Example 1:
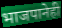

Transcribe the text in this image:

भाजपानेही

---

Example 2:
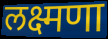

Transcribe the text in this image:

लक्ष्मणा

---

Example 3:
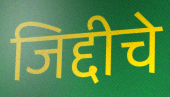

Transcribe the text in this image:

जिद्दीचे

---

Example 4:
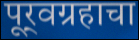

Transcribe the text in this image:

पूर्वग्रहाचा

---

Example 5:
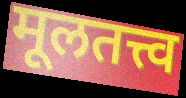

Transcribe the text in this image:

मूलतत्त्व